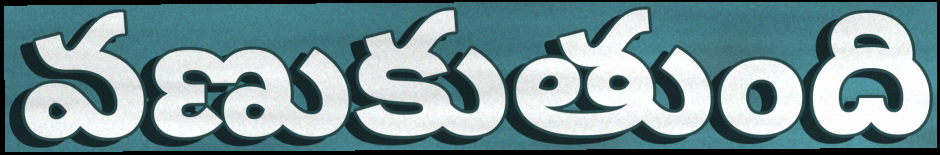
వణుకుతుంది